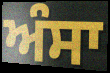
ਅੰਸਾ